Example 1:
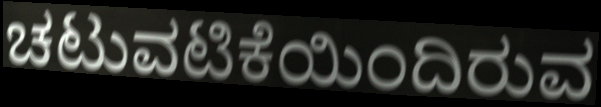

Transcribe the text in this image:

ಚಟುವಟಿಕೆಯಿಂದಿರುವ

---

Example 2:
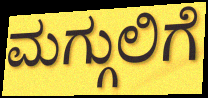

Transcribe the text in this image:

ಮಗ್ಗುಲಿಗೆ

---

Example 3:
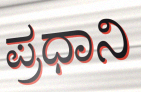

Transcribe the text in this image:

ಪ್ರಧಾನಿ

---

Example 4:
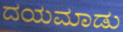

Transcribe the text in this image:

ದಯಮಾಡು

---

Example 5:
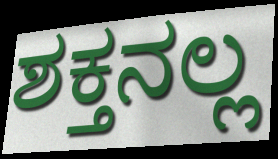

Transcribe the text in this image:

ಶಕ್ತನಲ್ಲ